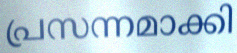
പ്രസന്നമാക്കി